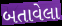
બતાવેલા